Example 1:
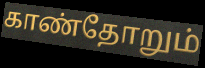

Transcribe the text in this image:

காண்தோறும்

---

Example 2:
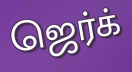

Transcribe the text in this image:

ஜெர்க்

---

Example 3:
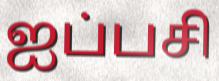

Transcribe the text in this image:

ஐப்பசி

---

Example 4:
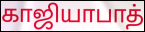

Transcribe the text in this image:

காஜியாபாத்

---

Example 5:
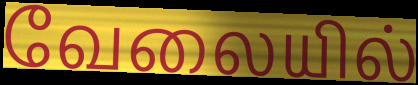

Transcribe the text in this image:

வேலையில்